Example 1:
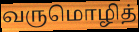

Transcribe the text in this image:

வருமொழித்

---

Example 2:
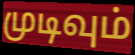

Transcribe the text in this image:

முடிவும்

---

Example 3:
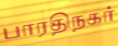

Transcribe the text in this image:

பாரதிநகர்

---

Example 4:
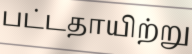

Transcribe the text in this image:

பட்டதாயிற்று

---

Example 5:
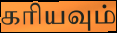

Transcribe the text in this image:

கரியவும்